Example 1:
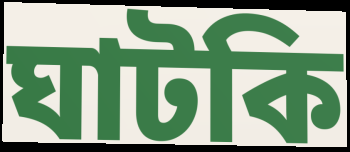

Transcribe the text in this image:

ঘাটকি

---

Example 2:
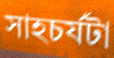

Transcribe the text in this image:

সাহচর্যটা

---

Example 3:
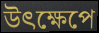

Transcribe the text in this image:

উৎক্ষেপে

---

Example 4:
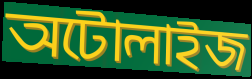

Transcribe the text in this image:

অটোলাইজ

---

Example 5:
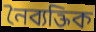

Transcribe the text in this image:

নৈব্যক্তিক